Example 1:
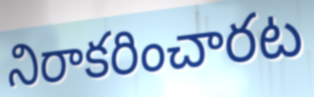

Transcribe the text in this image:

నిరాకరించారట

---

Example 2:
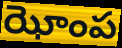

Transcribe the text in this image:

ఝోంప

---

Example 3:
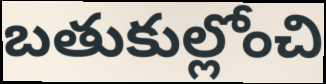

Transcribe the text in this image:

బతుకుల్లోంచి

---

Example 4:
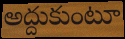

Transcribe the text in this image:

అద్దుకుంటూ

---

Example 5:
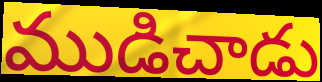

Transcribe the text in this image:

ముడిచాడు